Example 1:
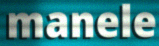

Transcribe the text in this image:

manele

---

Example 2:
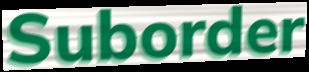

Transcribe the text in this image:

Suborder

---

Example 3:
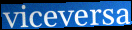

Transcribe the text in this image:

viceversa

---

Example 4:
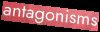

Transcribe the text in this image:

antagonisms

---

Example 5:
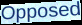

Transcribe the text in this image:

Opposed